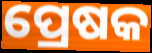
ପ୍ରେଷକ